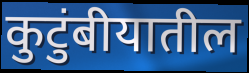
कुटुंबीयातील